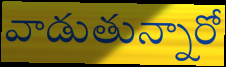
వాడుతున్నారో